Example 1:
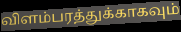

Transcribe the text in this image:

விளம்பரத்துக்காகவும்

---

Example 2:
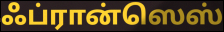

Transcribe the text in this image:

ஃப்ரான்ஸெஸ்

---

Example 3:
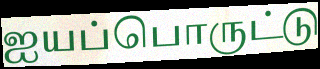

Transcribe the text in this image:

ஐயப்பொருட்டு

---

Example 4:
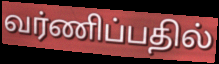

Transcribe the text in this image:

வர்ணிப்பதில்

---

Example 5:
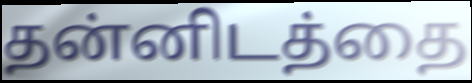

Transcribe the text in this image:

தன்னிடத்தை